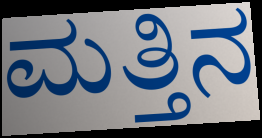
ಮತ್ತಿನ